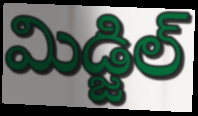
మిడ్జిల్